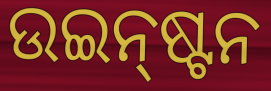
ଉଇନ୍‌ଷ୍ଟନ